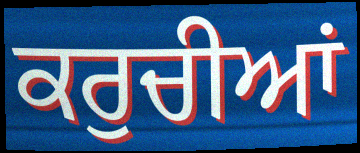
ਕਰੁਚੀਆਂ